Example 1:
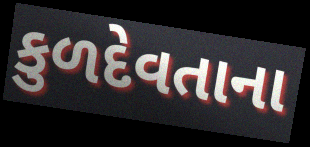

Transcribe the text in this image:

કુળદેવતાના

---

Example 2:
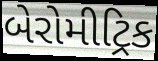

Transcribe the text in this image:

બેરોમીટ્રિક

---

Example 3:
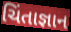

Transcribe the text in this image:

ચિંતાજ્ઞાન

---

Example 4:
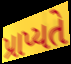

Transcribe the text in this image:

પ્રાપ્યતે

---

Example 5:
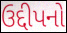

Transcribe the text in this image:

ઉદ્દીપનો